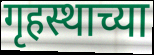
गृहस्थाच्या